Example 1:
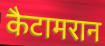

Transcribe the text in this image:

कैटामरान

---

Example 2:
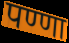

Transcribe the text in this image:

पण्णा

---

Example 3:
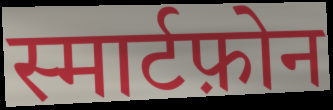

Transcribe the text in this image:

स्‍मार्टफ़ोन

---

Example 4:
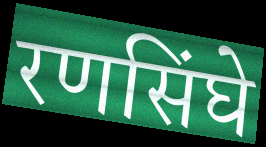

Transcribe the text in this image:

रणसिंघे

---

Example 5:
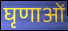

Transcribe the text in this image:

घृणाओं